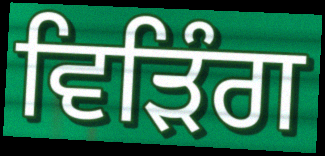
ਵਿੜਿੰਗ